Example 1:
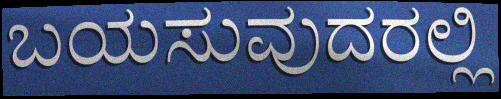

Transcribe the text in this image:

ಬಯಸುವುದರಲ್ಲಿ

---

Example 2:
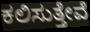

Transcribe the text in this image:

ಕಲಿಸುತ್ತೇವೆ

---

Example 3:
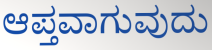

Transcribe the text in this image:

ಆಪ್ತವಾಗುವುದು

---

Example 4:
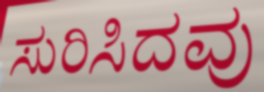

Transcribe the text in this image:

ಸುರಿಸಿದವು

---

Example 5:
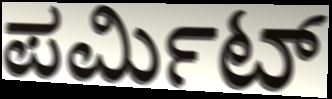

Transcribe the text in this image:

ಪರ್ಮಿಟ್